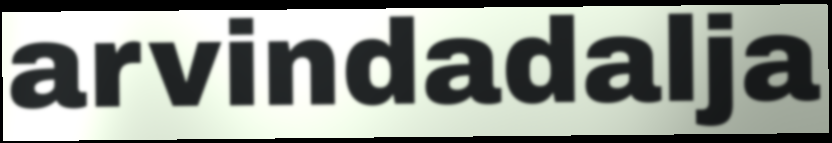
arvindadalja